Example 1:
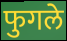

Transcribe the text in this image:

फुगले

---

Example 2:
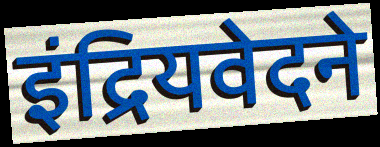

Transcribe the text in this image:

इंद्रियवेदने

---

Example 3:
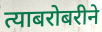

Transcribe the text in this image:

त्याबरोबरीने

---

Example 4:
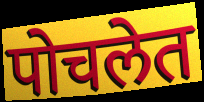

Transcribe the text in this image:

पोचलेत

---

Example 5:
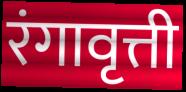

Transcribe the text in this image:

रंगावृत्ती